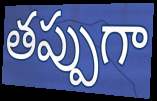
తప్పుగా